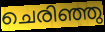
ചെരിഞ്ഞു